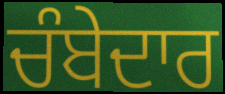
ਚੰਬੇਦਾਰ